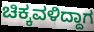
ಚಿಕ್ಕವಳಿದ್ದಾಗ